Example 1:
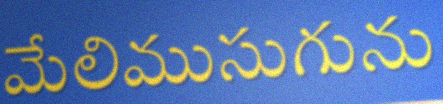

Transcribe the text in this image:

మేలిముసుగును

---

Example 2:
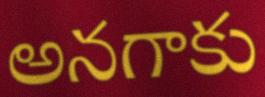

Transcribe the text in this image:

అనగాకు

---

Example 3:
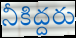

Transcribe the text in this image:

నీకిద్దరు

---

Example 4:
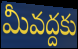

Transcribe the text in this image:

మీవద్దకు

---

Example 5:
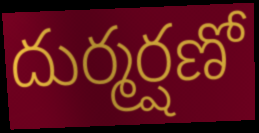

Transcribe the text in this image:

దుర్మర్షణో